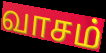
வாசம்